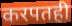
करपतही